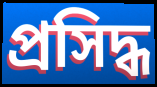
প্রসিদ্ধ